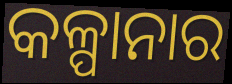
କଳ୍ପାନାର